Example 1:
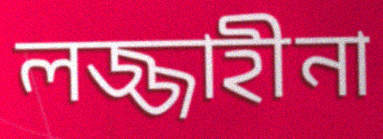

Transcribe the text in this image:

লজ্জাহীনা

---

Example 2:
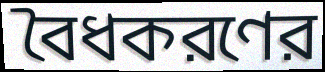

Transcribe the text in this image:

বৈধকরণের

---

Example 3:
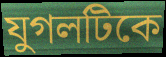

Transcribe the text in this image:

যুগলটিকে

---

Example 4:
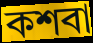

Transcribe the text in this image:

কশবা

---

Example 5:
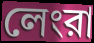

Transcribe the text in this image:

লেংরা